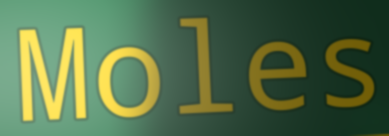
Moles